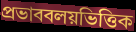
প্রভাববলয়ভিত্তিক